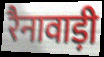
रैनावाड़ी